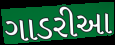
ગાડરીઆ